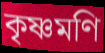
কৃষ্ণমণি